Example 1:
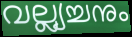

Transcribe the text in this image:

വല്ല്യച്ചനും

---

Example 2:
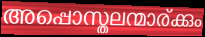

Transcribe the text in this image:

അപ്പൊസ്തലന്മാര്ക്കും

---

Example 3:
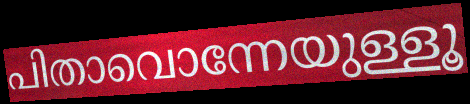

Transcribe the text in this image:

പിതാവൊന്നേയുള്ളൂ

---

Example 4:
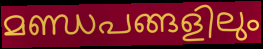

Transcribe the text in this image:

മണ്ഡപങ്ങളിലും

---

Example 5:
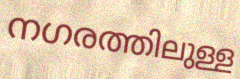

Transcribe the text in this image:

നഗരത്തിലുള്ള